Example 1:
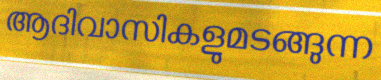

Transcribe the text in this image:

ആദിവാസികളുമടങ്ങുന്ന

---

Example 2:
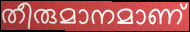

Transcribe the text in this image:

തീരുമാനമാണ്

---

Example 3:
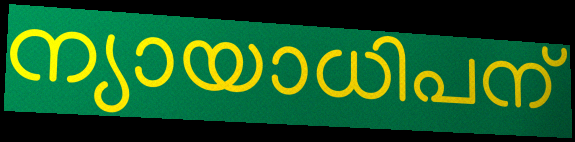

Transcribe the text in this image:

ന്യായാധിപന്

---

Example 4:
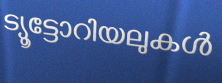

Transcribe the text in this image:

ട്യൂട്ടോറിയലുകൾ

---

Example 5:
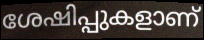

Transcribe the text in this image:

ശേഷിപ്പുകളാണ്